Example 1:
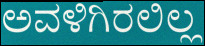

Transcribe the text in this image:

ಅವಳಿಗಿರಲಿಲ್ಲ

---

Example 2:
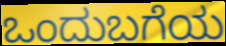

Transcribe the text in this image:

ಒಂದುಬಗೆಯ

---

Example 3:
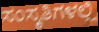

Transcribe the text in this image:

ಸಂಸ್ಕೃತಿಗಳಲ್ಲಿ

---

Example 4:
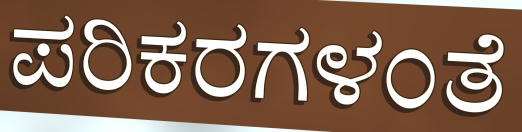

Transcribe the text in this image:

ಪರಿಕರಗಳಂತೆ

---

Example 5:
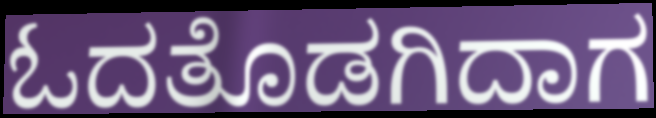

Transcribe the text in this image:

ಓದತೊಡಗಿದಾಗ